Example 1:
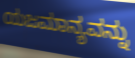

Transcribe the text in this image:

ಯಜಮಾನ್ಯವನ್ನು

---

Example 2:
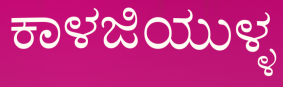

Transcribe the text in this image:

ಕಾಳಜಿಯುಳ್ಳ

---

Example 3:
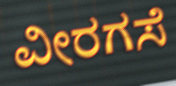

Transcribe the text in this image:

ವೀರಗಸೆ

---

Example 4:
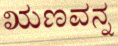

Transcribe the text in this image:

ಋಣವನ್ನ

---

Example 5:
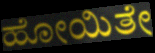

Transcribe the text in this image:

ಹೋಯಿತೇ